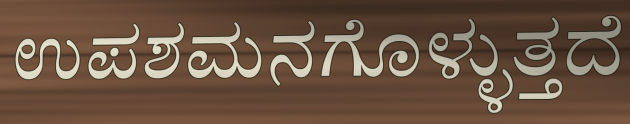
ಉಪಶಮನಗೊಳ್ಳುತ್ತದೆ